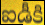
ఐడీకి